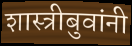
शास्त्रीबुवांनी